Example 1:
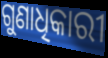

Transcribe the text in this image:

ଗୁଣାଧିକାରୀ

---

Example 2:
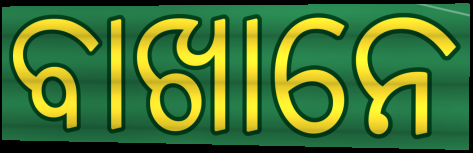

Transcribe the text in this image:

ବାଖାନେ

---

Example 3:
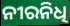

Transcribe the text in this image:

ନୀରନିଧି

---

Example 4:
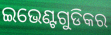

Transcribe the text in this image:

ଇଭେଣ୍ଟଗୁଡିକର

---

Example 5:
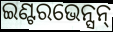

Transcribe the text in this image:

ଇଣ୍ଟରଭେନ୍ସନ୍